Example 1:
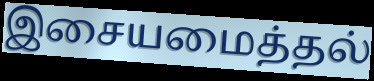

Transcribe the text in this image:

இசையமைத்தல்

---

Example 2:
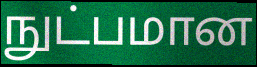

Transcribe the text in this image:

நுட்பமான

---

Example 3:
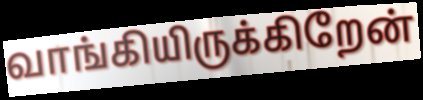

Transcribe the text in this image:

வாங்கியிருக்கிறேன்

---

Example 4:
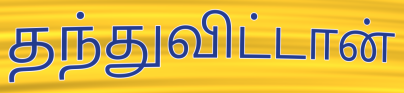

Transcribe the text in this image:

தந்துவிட்டான்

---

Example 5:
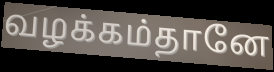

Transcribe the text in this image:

வழக்கம்தானே